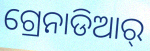
ଗ୍ରେନାଡିଆର୍